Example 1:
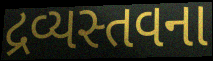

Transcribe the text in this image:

દ્રવ્યસ્તવના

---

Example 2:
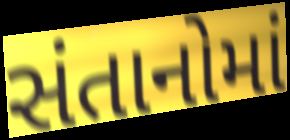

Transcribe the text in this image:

સંતાનોમાં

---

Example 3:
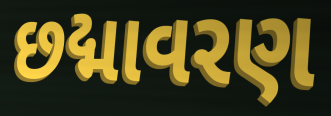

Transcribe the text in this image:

છદ્માવરણ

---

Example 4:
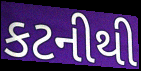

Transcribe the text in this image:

કટનીથી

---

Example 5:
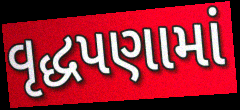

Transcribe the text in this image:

વૃદ્ધપણામાં